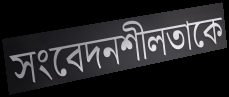
সংবেদনশীলতাকে